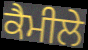
ਕੈਮੀਲੇ